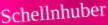
Schellnhuber